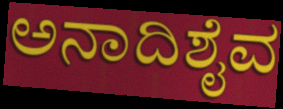
ಅನಾದಿಶೈವ